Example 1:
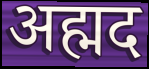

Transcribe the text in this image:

अह्मद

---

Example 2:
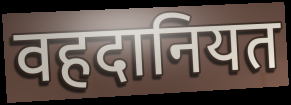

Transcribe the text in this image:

वहदानियत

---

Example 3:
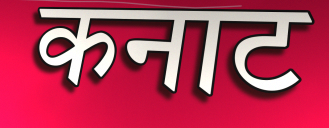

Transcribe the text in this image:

कनाट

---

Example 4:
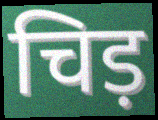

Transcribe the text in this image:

चिड़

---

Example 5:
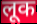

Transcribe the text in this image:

लूक